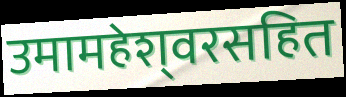
उमामहेश्वरसहित